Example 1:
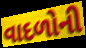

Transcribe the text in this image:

વાદળોની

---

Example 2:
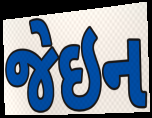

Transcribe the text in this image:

જેઇન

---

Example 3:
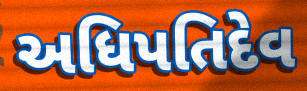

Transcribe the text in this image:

અધિપતિદેવ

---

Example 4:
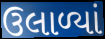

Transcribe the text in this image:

ઉલાળ્યાં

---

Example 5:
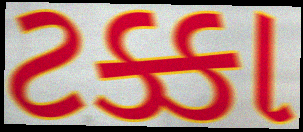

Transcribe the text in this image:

ટક્કા